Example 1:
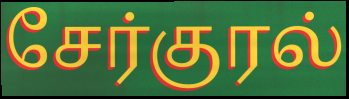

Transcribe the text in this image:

சேர்குரல்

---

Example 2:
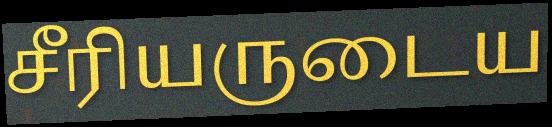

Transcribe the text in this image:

சீரியருடைய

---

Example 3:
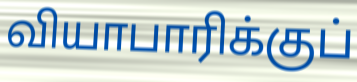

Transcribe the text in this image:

வியாபாரிக்குப்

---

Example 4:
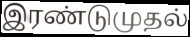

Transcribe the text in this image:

இரண்டுமுதல்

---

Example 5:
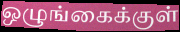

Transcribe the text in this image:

ஒழுங்கைக்குள்